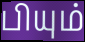
பியும்